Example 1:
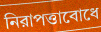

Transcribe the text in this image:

নিরাপত্তাবোধে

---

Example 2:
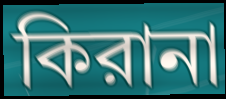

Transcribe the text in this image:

কিরানা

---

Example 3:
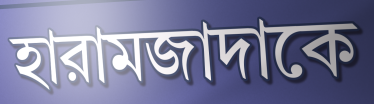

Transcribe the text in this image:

হারামজাদাকে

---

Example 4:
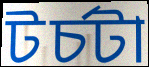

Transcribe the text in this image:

টর্চটা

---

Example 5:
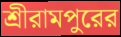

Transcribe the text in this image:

শ্রীরামপুরের